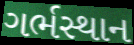
ગર્ભસ્થાન